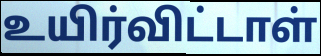
உயிர்விட்டாள்